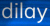
dilay